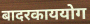
बादरकाययोग